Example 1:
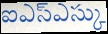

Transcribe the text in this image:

ఐఎస్ఎస్కు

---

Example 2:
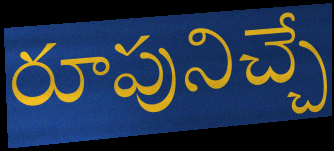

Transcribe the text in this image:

రూపునిచ్చే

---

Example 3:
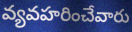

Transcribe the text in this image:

వ్యవహరించేవారు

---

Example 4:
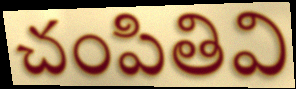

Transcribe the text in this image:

చంపితివి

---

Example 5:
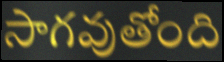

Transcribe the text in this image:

సాగవుతోంది